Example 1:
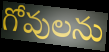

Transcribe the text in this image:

గోవులను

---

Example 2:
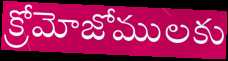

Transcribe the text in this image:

క్రోమోజోములకు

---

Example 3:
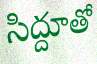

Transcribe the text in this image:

సిద్దూతో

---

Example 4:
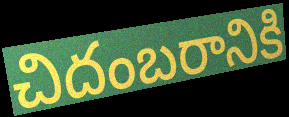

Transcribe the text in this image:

చిదంబరానికి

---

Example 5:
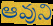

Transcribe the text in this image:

ఆవుని